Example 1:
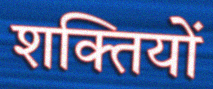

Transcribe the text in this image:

शक्तियों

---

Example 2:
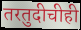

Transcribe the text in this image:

तरतुदीचीही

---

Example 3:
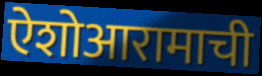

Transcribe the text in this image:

ऐशोआरामाची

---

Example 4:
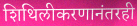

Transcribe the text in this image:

शिथिलीकरणानंतरही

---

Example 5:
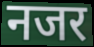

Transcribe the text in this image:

नजर